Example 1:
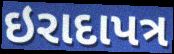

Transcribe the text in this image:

ઇરાદાપત્ર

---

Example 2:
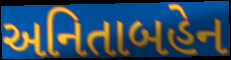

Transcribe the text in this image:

અનિતાબહેન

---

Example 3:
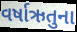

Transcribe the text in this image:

વર્ષાઋતુના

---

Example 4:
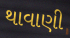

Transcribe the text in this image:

થાવાણી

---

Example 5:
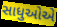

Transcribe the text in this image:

સાધુઓએ